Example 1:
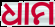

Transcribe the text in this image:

ଧାମ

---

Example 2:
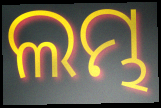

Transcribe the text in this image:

ଲମ୍ଭ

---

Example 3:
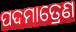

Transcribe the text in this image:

ପଦମାତ୍ରେଣ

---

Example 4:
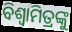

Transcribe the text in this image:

ବିଶ୍ଵାମିତ୍ରଙ୍କୁ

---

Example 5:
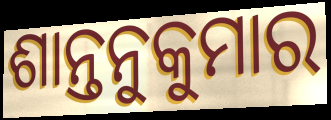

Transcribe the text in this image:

ଶାନ୍ତନୁକୁମାର